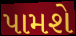
પામશે